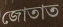
জোতাত